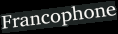
Francophone